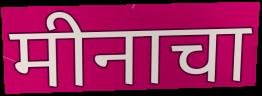
मीनाचा